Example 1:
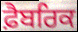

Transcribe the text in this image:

ਫ਼ੈਬਰਿਕ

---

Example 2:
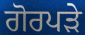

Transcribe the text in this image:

ਗੋਰਪੜੇ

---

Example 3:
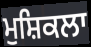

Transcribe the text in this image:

ਮੁਸ਼ਿਕਲਾ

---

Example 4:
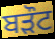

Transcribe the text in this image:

ਬੜੌਟ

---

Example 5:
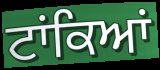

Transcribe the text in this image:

ਟਾਂਕਿਆਂ